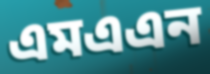
এমএএন